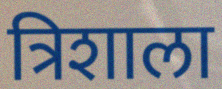
त्रिशाला